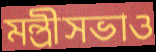
মন্ত্রীসভাও